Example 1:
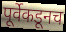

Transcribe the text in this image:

पूर्वेकडूनच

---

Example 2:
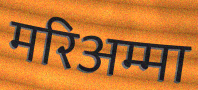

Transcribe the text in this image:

मरिअम्मा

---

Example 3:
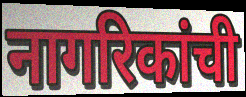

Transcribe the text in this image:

नागरिकांची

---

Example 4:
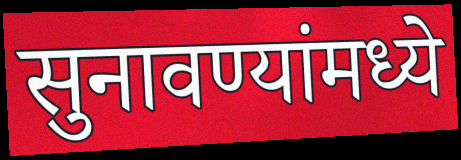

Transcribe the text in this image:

सुनावण्यांमध्ये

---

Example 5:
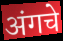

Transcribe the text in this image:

अंगचे